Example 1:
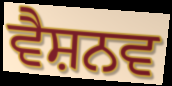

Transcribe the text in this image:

ਵੈਸ਼ਨਵ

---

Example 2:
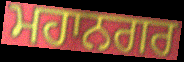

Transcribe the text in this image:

ਮਹਾਨਗਰ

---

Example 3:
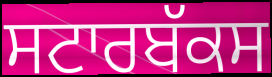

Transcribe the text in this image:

ਸਟਾਰਬੱਕਸ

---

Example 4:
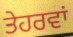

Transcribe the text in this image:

ਤੇਹਰਵਾਂ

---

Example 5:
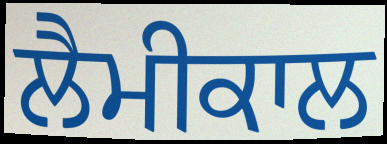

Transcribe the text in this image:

ਲੈਮੀਕਾਲ